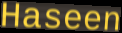
Haseen